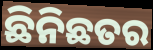
ଛିନିଛତର